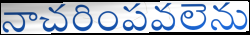
నాచరింపవలెను